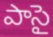
పాసై